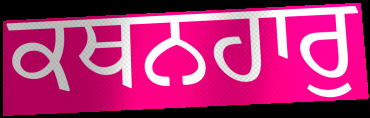
ਕਥਨਹਾਰੁ